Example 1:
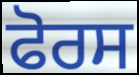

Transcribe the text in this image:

ਫੋਰਸ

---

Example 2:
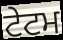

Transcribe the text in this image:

ਟੇਟਮ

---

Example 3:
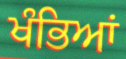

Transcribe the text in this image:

ਖੰਭਿਆਂ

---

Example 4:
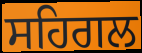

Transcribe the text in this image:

ਸਹਿਗਲ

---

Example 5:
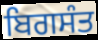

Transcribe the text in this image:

ਬਿਗਸੰਤ